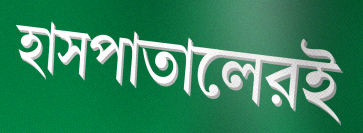
হাসপাতালেরই